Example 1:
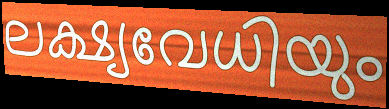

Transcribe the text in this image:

ലക്ഷ്യവേധിയും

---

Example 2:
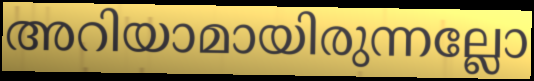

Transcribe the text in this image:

അറിയാമായിരുന്നല്ലോ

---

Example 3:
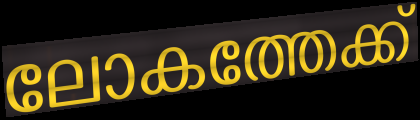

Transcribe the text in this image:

ലോകത്തേക്ക്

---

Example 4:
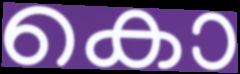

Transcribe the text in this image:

കൊ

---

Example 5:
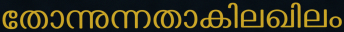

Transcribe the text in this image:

തോന്നുന്നതാകിലഖിലം